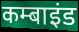
कम्बाइंड